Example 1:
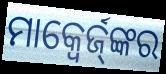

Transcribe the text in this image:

ମାକ୍ୱେର୍ଜ୍‌ଙ୍କର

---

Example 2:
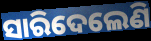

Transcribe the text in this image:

ସାରିଦେଲେଣି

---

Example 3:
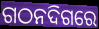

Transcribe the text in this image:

ଗଠନଦିଗରେ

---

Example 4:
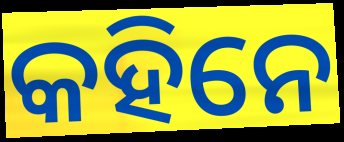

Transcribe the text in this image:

କହିନେ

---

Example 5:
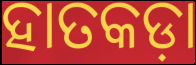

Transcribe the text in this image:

ହାତକଡ଼ା